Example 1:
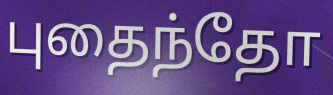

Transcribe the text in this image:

புதைந்தோ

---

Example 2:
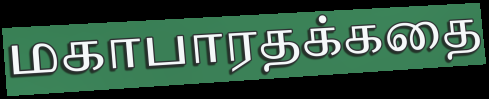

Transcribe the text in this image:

மகாபாரதக்கதை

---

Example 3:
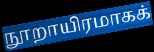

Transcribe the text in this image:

நூறாயிரமாகக்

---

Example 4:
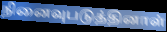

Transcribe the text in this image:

நினைவுபடுத்தினாள்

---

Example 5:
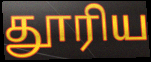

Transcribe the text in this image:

தூரிய